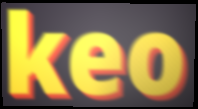
keo